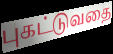
புகட்டுவதை